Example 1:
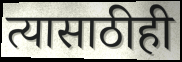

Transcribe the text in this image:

त्यासाठीही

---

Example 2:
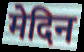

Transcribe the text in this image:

मेदिन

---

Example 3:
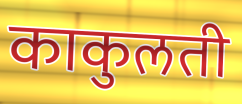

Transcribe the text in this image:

काकुलती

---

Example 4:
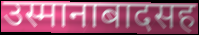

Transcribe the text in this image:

उस्मानाबादसह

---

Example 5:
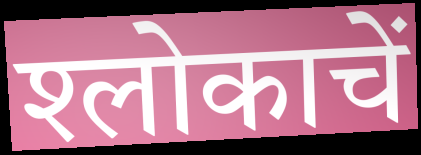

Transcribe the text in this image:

श्लोकाचें